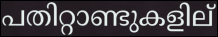
പതിറ്റാണ്ടുകളില്